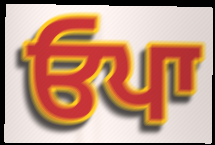
ਓਪਾ